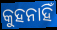
କୁହନାହିଁ